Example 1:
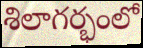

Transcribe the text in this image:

శిలాగర్భంలో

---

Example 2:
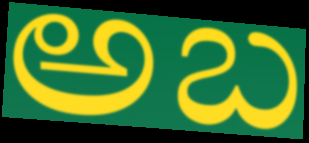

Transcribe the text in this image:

అబ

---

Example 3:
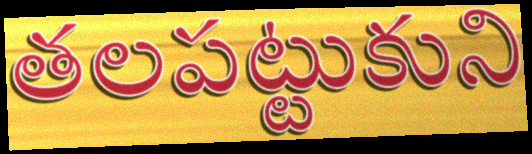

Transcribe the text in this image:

తలపట్టుకుని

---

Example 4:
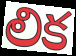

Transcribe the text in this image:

లిక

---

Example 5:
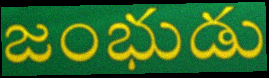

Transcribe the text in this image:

జంభుడు